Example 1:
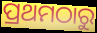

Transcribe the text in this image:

ପ୍ରଥମଠାରୁ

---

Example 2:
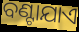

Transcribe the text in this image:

ବଣ୍ଟାଯାଏ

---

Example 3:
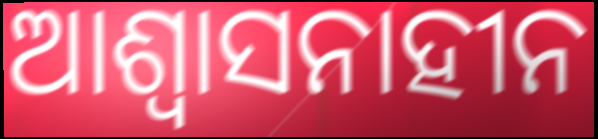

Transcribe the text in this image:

ଆଶ୍ୱାସନାହୀନ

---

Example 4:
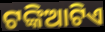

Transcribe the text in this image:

ଟଙ୍କିଆଟିଏ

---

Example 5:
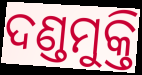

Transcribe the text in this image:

ଦଣ୍ଡମୁକ୍ତି